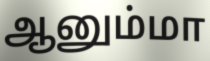
ஆனும்மா